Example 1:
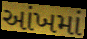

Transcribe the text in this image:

આંખમાં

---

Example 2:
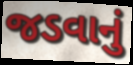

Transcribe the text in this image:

જડવાનું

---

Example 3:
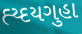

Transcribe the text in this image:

હ્ય્દયગુહા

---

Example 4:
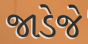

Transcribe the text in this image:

જાડેજે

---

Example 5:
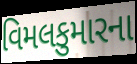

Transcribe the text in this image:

વિમલકુમારના